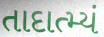
તાદાત્મ્યં